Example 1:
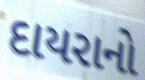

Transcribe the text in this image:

દાયરાનો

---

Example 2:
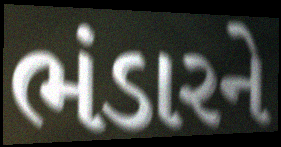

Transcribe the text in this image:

ભંડારને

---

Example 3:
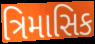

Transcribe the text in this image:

ત્રિમાસિક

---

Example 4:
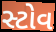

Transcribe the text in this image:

સ્ટોવ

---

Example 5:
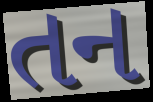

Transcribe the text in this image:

તન